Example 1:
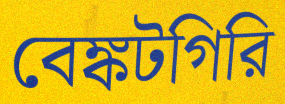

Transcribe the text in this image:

বেঙ্কটগিরি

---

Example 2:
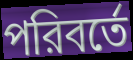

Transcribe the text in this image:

পরিবর্তে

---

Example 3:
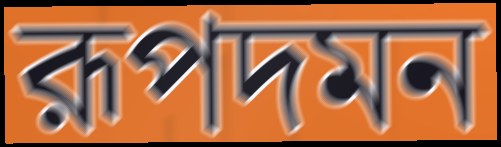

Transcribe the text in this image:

রূপদমন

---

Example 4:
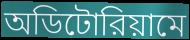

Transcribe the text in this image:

অডিটোরিয়ামে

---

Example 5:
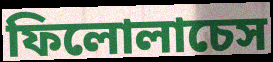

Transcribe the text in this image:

ফিলোলাচেস